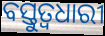
ବସ୍ତୁତ୍ୱଧାରୀ